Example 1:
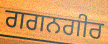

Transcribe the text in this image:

ਗਗਨਗੀਰ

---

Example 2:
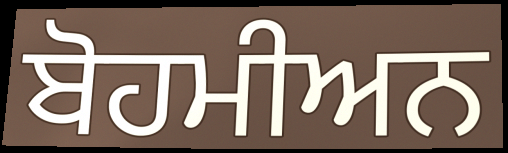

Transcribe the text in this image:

ਬੋਹਮੀਅਨ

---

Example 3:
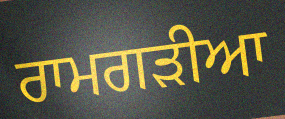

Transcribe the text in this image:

ਰਾਮਗੜੀਆ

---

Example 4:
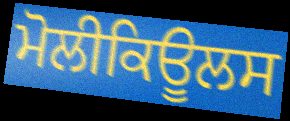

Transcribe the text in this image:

ਮੋਲੀਕਿਊਲਸ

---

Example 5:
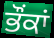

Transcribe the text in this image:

ਭੌਂਕਾਂ